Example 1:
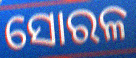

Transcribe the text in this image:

ସୋରଳ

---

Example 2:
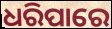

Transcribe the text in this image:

ଧରିପାରେ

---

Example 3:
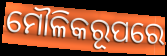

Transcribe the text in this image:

ମୌଳିକରୂପରେ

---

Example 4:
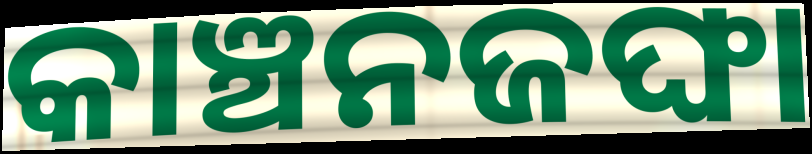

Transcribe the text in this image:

କାଞ୍ଚନଜଙ୍ଘା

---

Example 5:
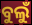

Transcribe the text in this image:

ବୁଲୁଁ